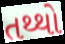
તથ્થો